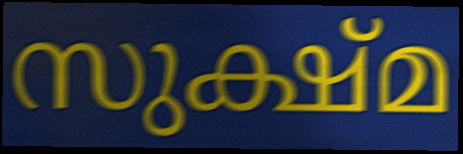
സുക്ഷ്മ